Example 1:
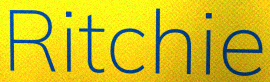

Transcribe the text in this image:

Ritchie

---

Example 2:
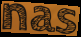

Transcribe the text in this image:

nas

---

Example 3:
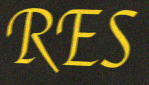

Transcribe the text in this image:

RES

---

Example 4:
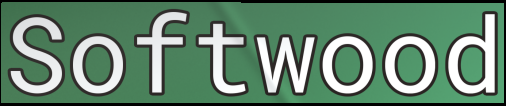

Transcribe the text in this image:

Softwood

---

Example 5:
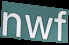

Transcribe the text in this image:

nwf